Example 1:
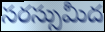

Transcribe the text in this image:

సరస్సుమీద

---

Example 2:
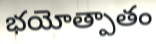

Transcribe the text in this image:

భయోత్పాతం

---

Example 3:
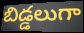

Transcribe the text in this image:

బిడ్డలుగా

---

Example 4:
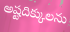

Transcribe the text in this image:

అష్టదిక్కులను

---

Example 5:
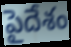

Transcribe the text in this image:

పైదేశం